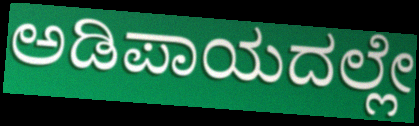
ಅಡಿಪಾಯದಲ್ಲೇ